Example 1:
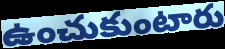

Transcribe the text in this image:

ఉంచుకుంటారు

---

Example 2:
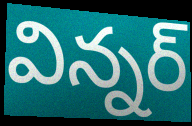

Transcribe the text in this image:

విన్నర్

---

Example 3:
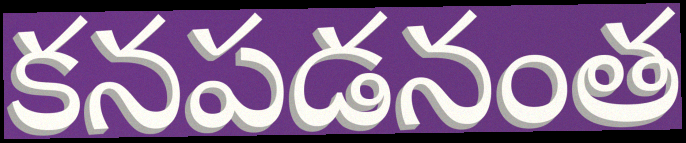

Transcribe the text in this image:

కనపడనంత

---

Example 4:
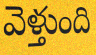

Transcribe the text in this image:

వెళ్తుంది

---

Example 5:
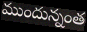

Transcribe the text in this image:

ముందున్నంత